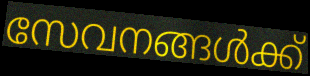
സേവനങ്ങൾക്ക്